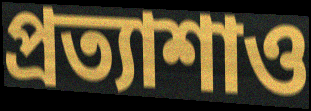
প্রত্যাশাও